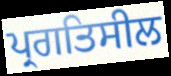
ਪ੍ਰਗਤਿਸੀਲ